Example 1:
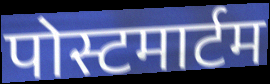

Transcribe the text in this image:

पोस्‍टमार्टम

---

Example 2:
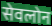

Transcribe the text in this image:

सेवलोन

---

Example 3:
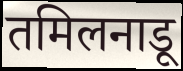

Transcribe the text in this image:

तमिलनाडू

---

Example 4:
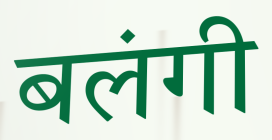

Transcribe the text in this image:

बलंगी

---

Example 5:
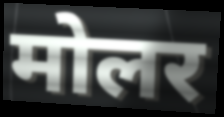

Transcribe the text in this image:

मोलर